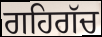
ਗਹਿਗੱਚ